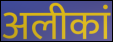
अलीकां